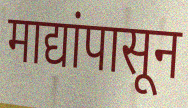
माद्यांपासून